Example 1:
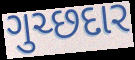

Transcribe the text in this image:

ગુચ્છદાર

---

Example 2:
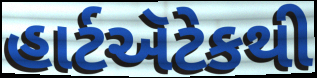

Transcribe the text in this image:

હાર્ટઍટેકથી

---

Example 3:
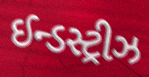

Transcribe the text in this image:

ઈન્ડસ્ટ્રીઝ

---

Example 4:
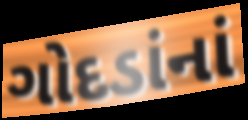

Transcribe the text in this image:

ગોદડાંનાં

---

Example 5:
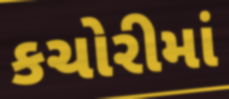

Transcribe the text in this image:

કચોરીમાં